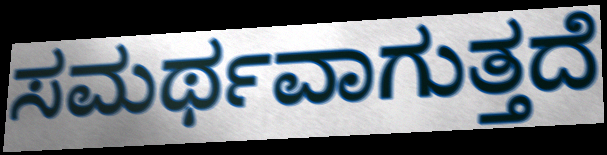
ಸಮರ್ಥವಾಗುತ್ತದೆ